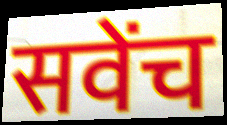
सवेंच